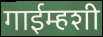
गाईम्हशी